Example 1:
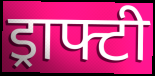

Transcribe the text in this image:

ड्राफ्टी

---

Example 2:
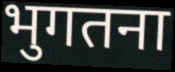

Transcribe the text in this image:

भुगतना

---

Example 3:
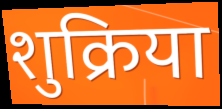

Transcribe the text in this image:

शुक्रिया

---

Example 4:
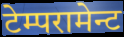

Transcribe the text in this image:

टेम्परामेन्ट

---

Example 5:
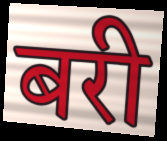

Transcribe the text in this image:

बरी